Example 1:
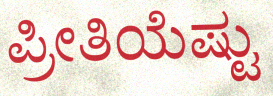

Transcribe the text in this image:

ಪ್ರೀತಿಯೆಷ್ಟು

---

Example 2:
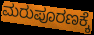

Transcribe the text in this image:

ಮರುಪೂರಣಕ್ಕೆ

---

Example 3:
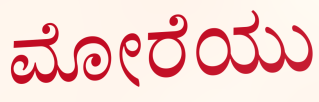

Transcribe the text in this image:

ಮೋರೆಯು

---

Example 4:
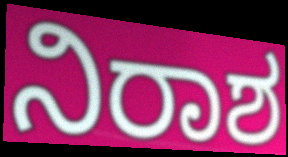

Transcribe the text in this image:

ನಿರಾಶ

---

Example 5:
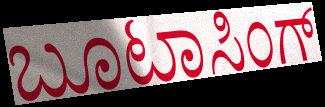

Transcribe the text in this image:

ಬೂಟಾಸಿಂಗ್